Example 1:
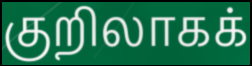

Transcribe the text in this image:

குறிலாகக்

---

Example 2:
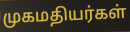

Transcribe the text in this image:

முகமதியர்கள்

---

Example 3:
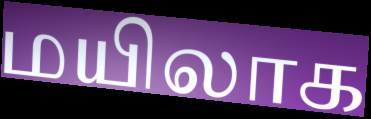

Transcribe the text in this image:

மயிலாக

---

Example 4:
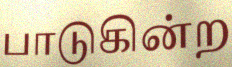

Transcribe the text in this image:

பாடுகின்ற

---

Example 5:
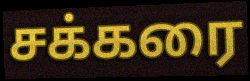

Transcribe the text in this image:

சக்கரை